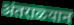
अंतराळयान